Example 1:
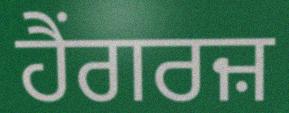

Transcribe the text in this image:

ਹੈਂਗਰਜ਼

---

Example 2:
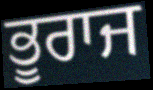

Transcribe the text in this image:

ਭੂਰਾਜ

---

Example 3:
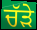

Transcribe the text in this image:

ਚੱੜੇ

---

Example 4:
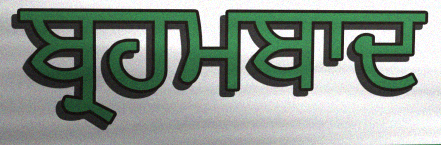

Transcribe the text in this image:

ਬ੍ਰਹਮਬਾਦ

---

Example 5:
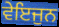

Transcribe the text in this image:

ਵੇਇਜੁਨ